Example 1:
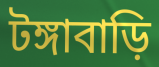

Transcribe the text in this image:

টঙ্গাবাড়ি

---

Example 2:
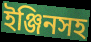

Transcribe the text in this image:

ইঞ্জিনসহ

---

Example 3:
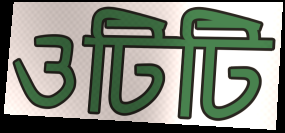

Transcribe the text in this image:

ওটিটি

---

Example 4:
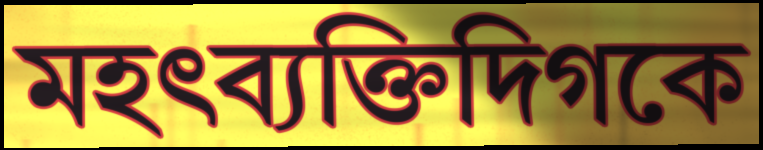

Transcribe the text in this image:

মহৎব্যক্তিদিগকে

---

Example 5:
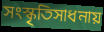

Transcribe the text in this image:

সংস্কৃতিসাধনায়